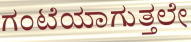
ಗಂಟೆಯಾಗುತ್ತಲೇ